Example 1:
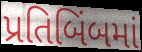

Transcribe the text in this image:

પ્રતિબિંબમાં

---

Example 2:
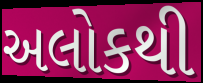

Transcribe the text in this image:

અલોકથી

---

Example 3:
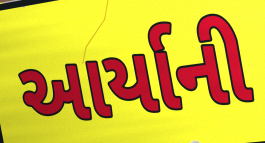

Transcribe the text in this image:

આર્યાની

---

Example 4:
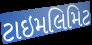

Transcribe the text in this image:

ટાઇમલિમિટ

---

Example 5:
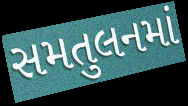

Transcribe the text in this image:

સમતુલનમાં